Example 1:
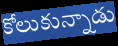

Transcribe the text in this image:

కోలుకున్నాడు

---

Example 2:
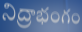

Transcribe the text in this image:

నిద్రాభంగం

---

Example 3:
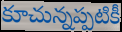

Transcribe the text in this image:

కూచున్నప్పటికీ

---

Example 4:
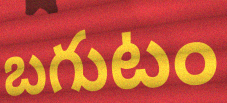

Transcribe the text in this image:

బగుటం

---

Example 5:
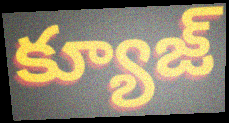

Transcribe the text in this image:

క్యూజ్